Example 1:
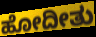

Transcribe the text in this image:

ಹೋದೀತು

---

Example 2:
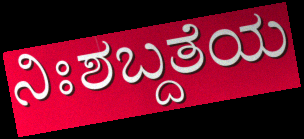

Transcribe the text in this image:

ನಿಃಶಬ್ದತೆಯ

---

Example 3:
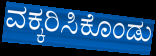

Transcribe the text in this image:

ವಕ್ಕರಿಸಿಕೊಂಡು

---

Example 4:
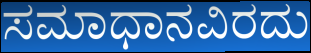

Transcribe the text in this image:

ಸಮಾಧಾನವಿರದು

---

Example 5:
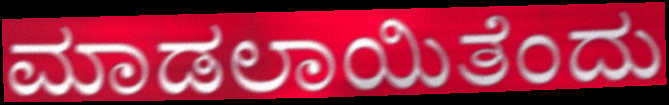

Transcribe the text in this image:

ಮಾಡಲಾಯಿತೆಂದು